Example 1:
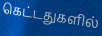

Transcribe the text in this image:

கெட்டதுகளில்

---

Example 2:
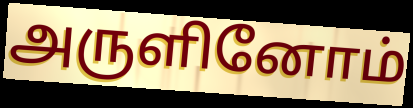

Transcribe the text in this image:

அருளினோம்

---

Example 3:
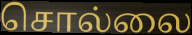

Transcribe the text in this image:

சொல்லை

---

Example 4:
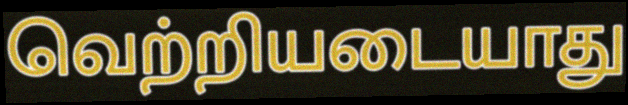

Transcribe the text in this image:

வெற்றியடையாது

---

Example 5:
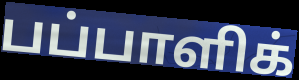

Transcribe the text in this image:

பப்பாளிக்